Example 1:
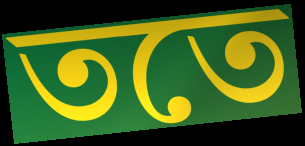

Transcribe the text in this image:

ততে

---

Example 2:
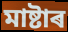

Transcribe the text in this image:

মাষ্টাৰ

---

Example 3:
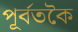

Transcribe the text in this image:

পূৰ্বতকৈ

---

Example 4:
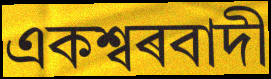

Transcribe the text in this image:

একশ্বৰবাদী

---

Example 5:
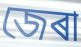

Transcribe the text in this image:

জেৰা